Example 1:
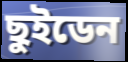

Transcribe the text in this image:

ছুইডেন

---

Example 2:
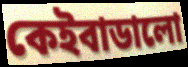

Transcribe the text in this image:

কেইবাডালো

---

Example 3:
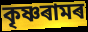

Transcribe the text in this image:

কৃষ্ণৰামৰ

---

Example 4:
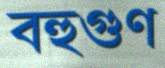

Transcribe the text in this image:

বহুগুণ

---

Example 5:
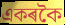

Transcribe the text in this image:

একৰকৈ